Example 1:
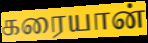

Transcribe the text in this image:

கரையான்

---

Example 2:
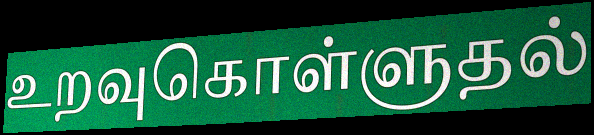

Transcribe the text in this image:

உறவுகொள்ளுதல்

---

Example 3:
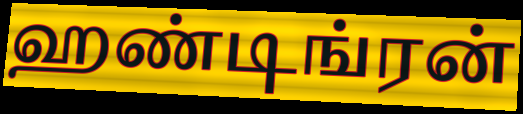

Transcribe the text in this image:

ஹண்டிங்ரன்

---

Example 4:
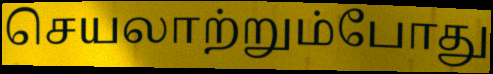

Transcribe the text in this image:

செயலாற்றும்போது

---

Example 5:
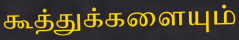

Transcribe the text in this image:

கூத்துக்களையும்